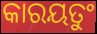
କାରୟତୁଂ